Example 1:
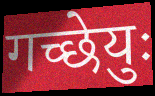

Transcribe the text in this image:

गच्छेयुः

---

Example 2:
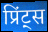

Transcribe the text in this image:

प्रिंट्स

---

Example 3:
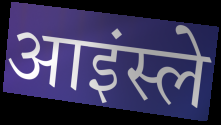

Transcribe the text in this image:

आइंस्ले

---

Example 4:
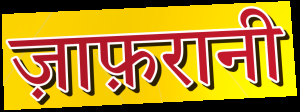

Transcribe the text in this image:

ज़ाफ़रानी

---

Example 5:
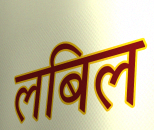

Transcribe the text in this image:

लबिल